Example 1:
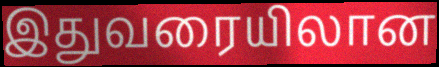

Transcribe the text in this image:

இதுவரையிலான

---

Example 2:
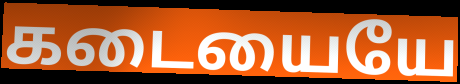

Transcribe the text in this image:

கடையையே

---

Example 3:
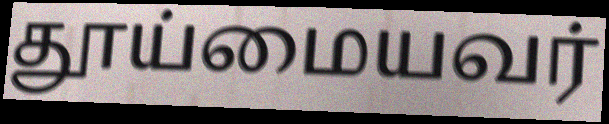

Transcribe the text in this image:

தூய்மையவர்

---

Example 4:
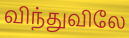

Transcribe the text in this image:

விந்துவிலே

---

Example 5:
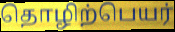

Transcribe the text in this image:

தொழிற்பெயர்